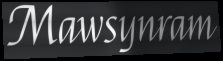
Mawsynram